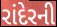
રાંદેરની